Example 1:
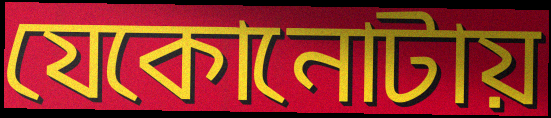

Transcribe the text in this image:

যেকোনোটায়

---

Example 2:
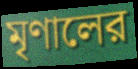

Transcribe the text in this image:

মৃণালের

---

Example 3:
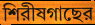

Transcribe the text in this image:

শিরীষগাছের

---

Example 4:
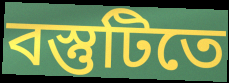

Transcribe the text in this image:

বস্তুটিতে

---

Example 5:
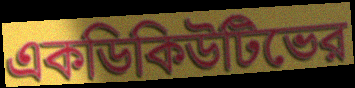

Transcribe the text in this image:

একডিকিউটিভের